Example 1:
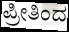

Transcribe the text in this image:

ಪ್ರೀತಿಂದ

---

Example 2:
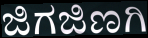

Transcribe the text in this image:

ಜಿಗಜಿಣಗಿ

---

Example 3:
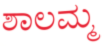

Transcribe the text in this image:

ಶಾಲಮ್ಮ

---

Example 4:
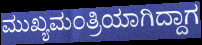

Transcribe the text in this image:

ಮುಖ್ಯಮಂತ್ರಿಯಾಗಿದ್ದಾಗ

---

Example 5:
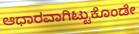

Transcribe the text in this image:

ಆಧಾರವಾಗಿಟ್ಟುಕೊಂಡೇ